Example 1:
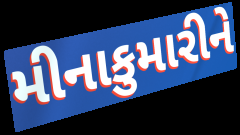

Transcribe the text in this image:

મીનાકુમારીને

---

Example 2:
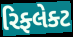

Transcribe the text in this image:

રિફ્લેક્ટ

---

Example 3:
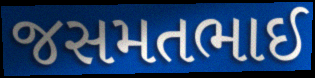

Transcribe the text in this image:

જસમતભાઈ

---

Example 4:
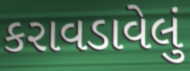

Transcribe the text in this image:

કરાવડાવેલું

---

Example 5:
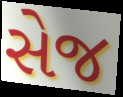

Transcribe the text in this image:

સેજ